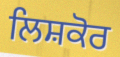
ਲਿਸ਼ਕੋਰ